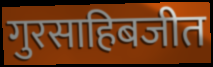
गुरसाहिबजीत